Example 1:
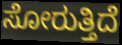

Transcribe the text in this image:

ಸೋರುತ್ತಿದೆ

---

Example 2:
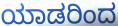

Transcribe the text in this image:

ಯಾಡರಿಂದ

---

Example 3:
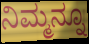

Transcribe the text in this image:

ನಿಮ್ಮನ್ನೂ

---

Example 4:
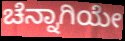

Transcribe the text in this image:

ಚೆನ್ನಾಗಿಯೇ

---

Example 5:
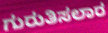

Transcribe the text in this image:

ಗುರುತಿಸಲಾರ